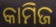
କାମିଜ